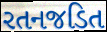
રતનજડિત